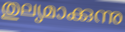
തുല്യമാക്കുന്നു